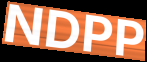
NDPP